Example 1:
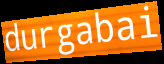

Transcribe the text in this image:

durgabai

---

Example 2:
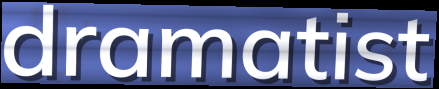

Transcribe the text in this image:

dramatist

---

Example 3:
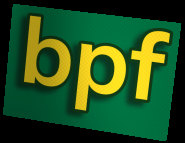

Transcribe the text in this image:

bpf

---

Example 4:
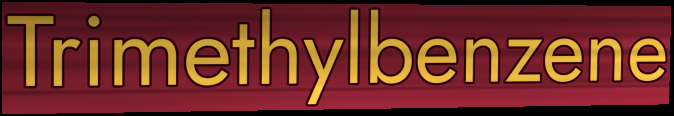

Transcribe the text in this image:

Trimethylbenzene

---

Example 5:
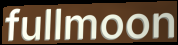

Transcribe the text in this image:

fullmoon